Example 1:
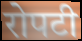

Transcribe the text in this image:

रोपटी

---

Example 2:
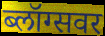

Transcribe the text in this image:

ब्लॉग्सवर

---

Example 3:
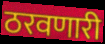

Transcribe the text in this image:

ठरवणारी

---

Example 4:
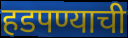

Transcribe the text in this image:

हडपण्याची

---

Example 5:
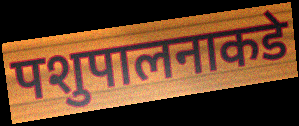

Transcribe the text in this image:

पशुपालनाकडे